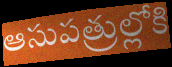
ఆసుపత్రుల్లోకి